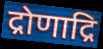
द्रोणाद्रि